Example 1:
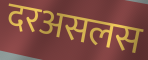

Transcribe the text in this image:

दरअसलस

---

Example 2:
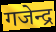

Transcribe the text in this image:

गजेन्द्र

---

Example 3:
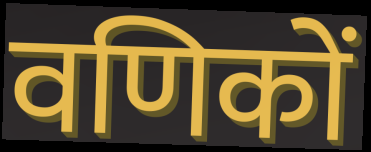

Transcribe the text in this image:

वणिकों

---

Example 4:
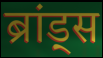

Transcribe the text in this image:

ब्रांड्स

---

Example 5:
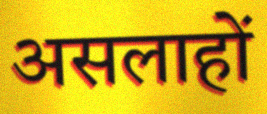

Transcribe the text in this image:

असलाहों